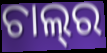
ଚାଲ୍‌ର